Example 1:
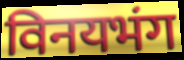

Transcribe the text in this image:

विनयभंग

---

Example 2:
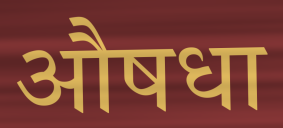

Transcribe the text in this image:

औषधा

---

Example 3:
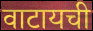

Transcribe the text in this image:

वाटायची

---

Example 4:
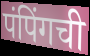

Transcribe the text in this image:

पंपिंगची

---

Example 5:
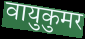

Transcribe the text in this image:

वायुकुमर